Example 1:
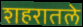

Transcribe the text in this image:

शहरातले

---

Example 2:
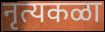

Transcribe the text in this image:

नृत्यकळा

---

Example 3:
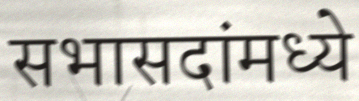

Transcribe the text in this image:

सभासदांमध्ये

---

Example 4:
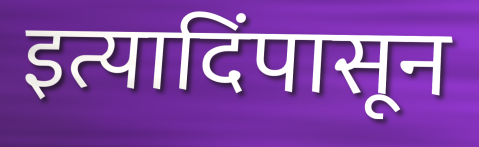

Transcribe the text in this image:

इत्यादिंपासून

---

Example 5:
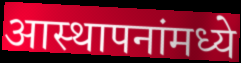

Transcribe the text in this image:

आस्थापनांमध्ये